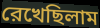
রেখেছিলাম